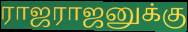
ராஜராஜனுக்கு